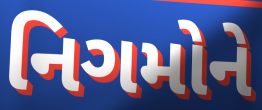
નિગમોને